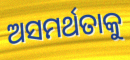
ଅସମର୍ଥତାକୁ